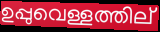
ഉപ്പുവെള്ളത്തില്